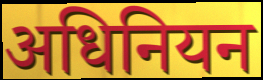
अधिनियन